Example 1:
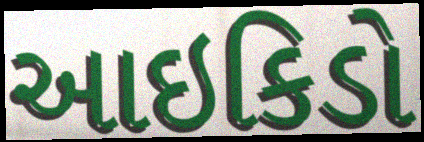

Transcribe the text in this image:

આઇકિડો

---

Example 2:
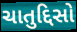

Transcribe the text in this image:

ચાતુદ્દિસો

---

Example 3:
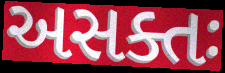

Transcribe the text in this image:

અસક્તઃ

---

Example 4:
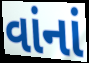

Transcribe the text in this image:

વાંનાં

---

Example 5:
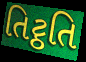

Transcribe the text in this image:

તિટ્ઠતિ